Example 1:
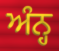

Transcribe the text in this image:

ਅੰਨ੍ਹ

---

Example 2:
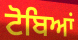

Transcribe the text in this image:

ਟੋਬਿਆਂ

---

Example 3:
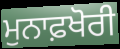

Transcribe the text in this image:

ਮੁਨਾਫ਼ਖੋਰੀ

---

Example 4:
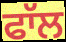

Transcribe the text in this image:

ਫਾੱਲ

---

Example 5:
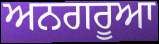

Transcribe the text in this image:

ਅਨਗਰੂਆ